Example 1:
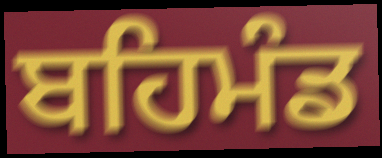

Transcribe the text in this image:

ਬਹਿਮੰਡ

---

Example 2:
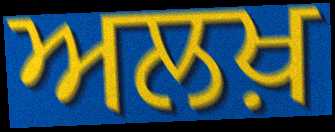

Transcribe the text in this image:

ਅਲਖ਼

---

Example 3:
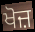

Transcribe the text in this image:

ਖੋਜ਼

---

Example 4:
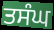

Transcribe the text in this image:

ਤਸੰਘ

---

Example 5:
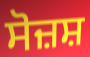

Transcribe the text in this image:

ਸੋਜ਼ਸ਼